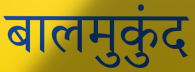
बालमुकुंद